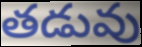
తడువు